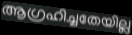
ആഗ്രഹിച്ചതേയില്ല